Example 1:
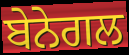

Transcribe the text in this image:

ਬੇਨੇਗਲ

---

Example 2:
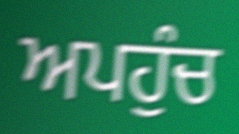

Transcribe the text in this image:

ਅਪਹੁੰਚ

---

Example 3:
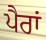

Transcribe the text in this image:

ਪੈਰਾਂ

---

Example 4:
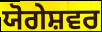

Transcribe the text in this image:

ਯੋਗੇਸ਼ਵਰ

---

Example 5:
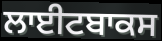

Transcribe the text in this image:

ਲਾਈਟਬਾਕਸ